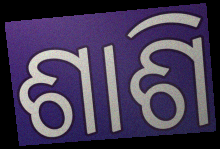
ଶାଶି